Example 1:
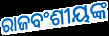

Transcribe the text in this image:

ରାଜବଂଶୀୟଙ୍କ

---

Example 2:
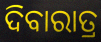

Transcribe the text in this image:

ଦିବାରାତ୍ର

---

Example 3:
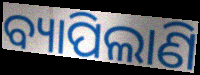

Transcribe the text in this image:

ବ୍ୟାପିଲାଣି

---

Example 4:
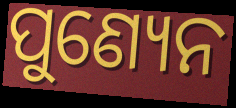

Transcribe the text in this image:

ପୁଣ୍ୟେନ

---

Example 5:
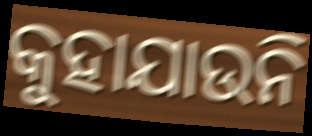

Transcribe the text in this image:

କୁହାଯାଉନି